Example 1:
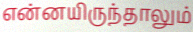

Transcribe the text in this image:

என்னயிருந்தாலும்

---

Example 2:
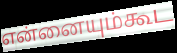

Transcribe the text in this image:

என்னையும்கூட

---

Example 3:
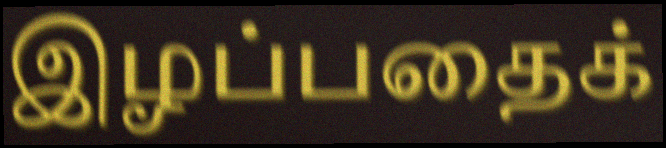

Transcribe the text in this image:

இழப்பதைக்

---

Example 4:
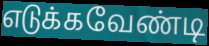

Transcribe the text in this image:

எடுக்கவேண்டி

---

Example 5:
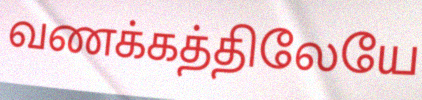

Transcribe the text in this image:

வணக்கத்திலேயே